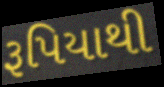
રૂપિયાથી